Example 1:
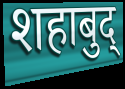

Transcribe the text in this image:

शहाबुद्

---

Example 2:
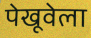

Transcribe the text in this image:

पेखूवेला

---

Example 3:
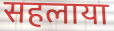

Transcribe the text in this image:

सहलाया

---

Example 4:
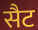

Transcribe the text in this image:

सैट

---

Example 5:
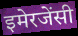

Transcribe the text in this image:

इमेरजेंसी